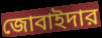
জোবাইদার